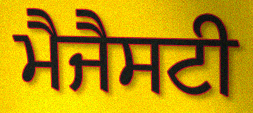
ਮੈਜੈਸਟੀ